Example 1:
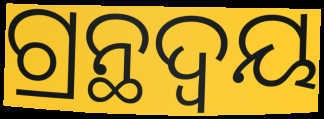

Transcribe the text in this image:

ଗ୍ରନ୍ଥଦ୍ଵୟ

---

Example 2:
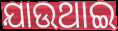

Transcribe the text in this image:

ଯାଉଥାଇ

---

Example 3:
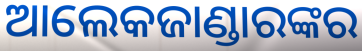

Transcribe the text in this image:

ଆଲେକଜାଣ୍ଡାରଙ୍କର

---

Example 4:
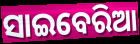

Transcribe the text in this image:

ସାଇବେରିଆ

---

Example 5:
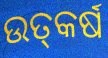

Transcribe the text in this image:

ଉତ୍‌କର୍ଷ